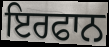
ਇਰਫਾਨ